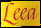
Leea